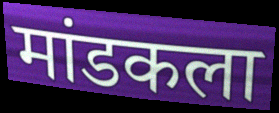
मांडकला